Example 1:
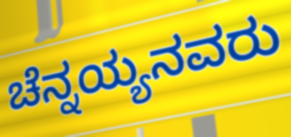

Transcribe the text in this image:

ಚೆನ್ನಯ್ಯನವರು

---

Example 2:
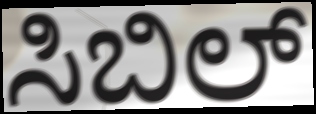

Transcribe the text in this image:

ಸಿಬಿಲ್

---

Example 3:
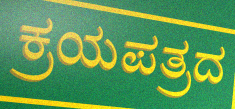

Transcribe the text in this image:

ಕ್ರಯಪತ್ರದ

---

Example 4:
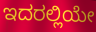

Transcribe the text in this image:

ಇದರಲ್ಲಿಯೇ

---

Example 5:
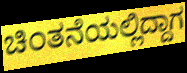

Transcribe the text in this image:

ಚಿಂತನೆಯಲ್ಲಿದ್ದಾಗ